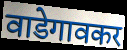
वाडेगावकर